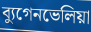
ব্যুগেনভেলিয়া